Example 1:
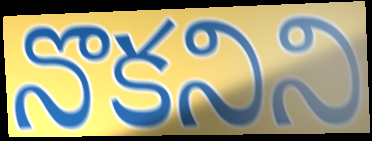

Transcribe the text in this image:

నొకనిని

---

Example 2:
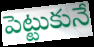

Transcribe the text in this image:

పెట్టుకునే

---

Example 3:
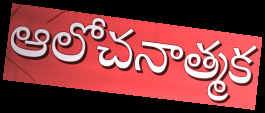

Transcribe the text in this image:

ఆలోచనాత్మక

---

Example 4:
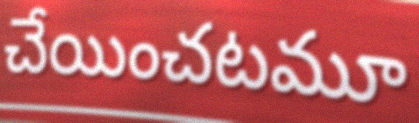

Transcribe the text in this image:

చేయించటమూ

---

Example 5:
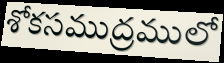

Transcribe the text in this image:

శోకసముద్రములో